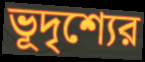
ভূদৃশ্যের